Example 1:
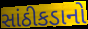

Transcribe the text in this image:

સાંઠીકડાનો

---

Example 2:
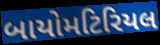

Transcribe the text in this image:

બાયોમટિરિયલ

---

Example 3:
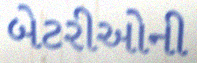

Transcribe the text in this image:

બેટરીઓની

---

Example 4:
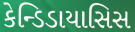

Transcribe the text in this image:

કેન્ડિડાયાસિસ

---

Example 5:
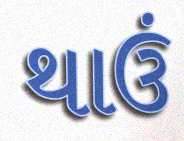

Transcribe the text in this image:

થાઉં